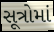
સૂત્રોમાં